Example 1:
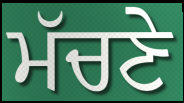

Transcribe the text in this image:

ਮੱਚਣੇ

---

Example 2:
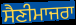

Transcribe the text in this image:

ਸੈਣੀਮਾਜਰਾ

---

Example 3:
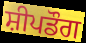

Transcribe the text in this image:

ਸ਼ੀਪਡੌਗ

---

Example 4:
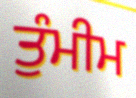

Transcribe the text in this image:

ਤੁੰਮੀਮ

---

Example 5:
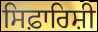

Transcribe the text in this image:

ਸਿਫ਼ਾਰਿਸ਼ੀ